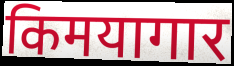
किमयागार